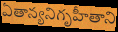
ఏతాన్యనిగృహీతాని